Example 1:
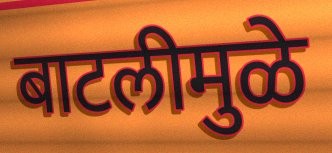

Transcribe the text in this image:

बाटलीमुळे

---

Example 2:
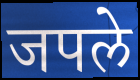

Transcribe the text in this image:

जपले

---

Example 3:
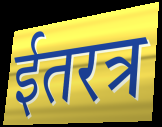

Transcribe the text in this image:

ईतरत्र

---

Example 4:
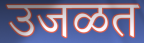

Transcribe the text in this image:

उजळत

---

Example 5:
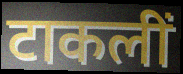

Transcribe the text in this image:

टाकलीं